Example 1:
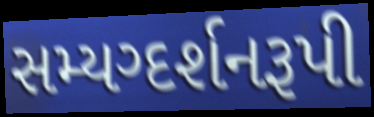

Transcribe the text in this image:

સમ્યગ્દર્શનરૂપી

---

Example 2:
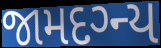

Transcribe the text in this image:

જામદગ્ન્ય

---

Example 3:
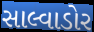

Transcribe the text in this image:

સાલ્વાડોર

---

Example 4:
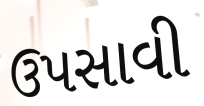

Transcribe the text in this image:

ઉપસાવી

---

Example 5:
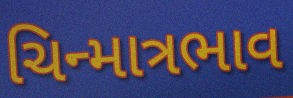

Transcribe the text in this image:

ચિન્માત્રભાવ